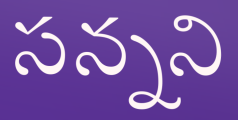
సన్నని